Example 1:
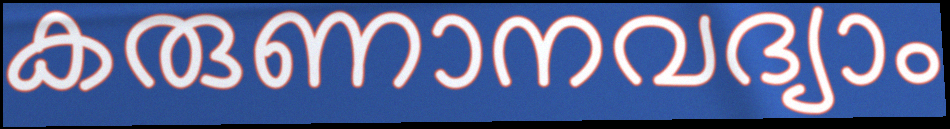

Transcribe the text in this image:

കരുണാനവദ്യാം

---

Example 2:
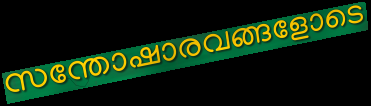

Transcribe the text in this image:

സന്തോഷാരവങ്ങളോടെ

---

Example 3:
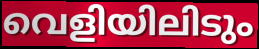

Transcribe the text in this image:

വെളിയിലിടും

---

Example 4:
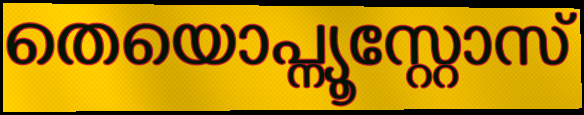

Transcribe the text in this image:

തെയൊപ്ന്യൂസ്റ്റോസ്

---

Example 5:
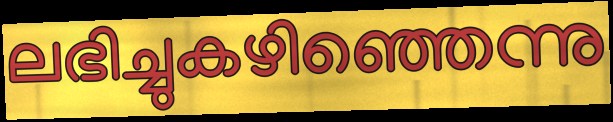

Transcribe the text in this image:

ലഭിച്ചുകഴിഞ്ഞെന്നു